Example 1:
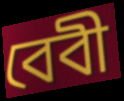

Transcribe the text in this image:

বেবী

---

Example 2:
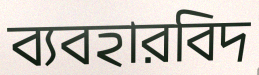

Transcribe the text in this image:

ব্যবহারবিদ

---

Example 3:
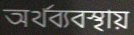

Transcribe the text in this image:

অর্থব্যবস্থায়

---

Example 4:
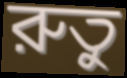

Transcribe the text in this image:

রুতু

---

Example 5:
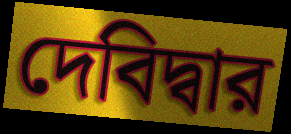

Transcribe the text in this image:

দেবিদ্বার